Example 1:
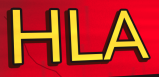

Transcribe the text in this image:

HLA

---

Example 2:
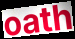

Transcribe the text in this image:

oath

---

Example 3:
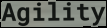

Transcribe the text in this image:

Agility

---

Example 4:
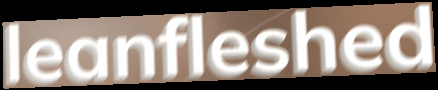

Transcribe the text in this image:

leanfleshed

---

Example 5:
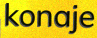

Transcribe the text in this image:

konaje